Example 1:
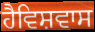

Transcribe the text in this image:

ਹੈਵਿਸ਼ਵਾਸ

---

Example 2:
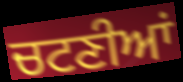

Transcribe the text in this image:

ਚਟਣੀਆਂ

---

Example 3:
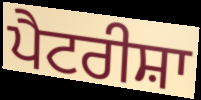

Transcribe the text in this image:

ਪੈਟਰੀਸ਼ਾ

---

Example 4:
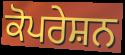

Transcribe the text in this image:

ਕੋਪਰੇਸ਼ਨ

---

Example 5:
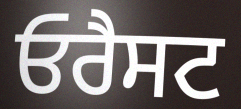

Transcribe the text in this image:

ਓਰੈਸਟ